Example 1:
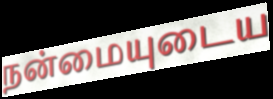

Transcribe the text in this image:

நன்மையுடைய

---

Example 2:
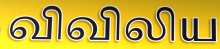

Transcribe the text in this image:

விவிலிய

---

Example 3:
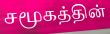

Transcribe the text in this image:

சமூகத்தின்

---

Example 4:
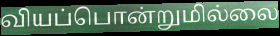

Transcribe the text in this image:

வியப்பொன்றுமில்லை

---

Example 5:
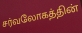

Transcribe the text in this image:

சர்வலோகத்தின்